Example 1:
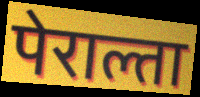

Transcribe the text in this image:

पेराल्ता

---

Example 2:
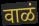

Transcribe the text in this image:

वाळं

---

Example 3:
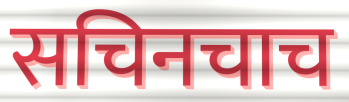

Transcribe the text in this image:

सचिनचाच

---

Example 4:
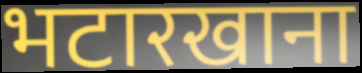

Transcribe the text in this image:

भटारखाना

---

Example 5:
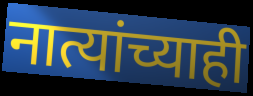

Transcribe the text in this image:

नात्यांच्याही